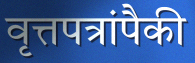
वृत्तपत्रांपैकी